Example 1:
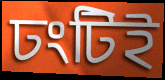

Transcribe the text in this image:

ঢংটিই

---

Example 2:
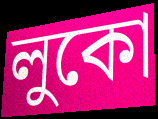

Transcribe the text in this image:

লুকো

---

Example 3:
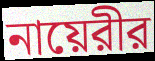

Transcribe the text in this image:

নায়েরীর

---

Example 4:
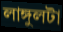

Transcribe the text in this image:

লাঙ্গুলটা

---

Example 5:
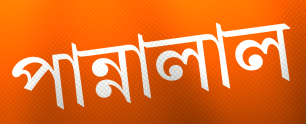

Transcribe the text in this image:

পান্নালাল